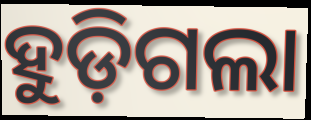
ହୁଡ଼ିଗଲା